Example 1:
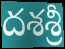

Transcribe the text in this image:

దశశ్రీ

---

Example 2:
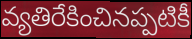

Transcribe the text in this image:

వ్యతిరేకించినప్పటికీ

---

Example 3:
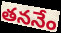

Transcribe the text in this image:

తననేం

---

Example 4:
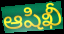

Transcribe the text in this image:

ఆషిఖీ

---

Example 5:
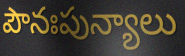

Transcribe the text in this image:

పౌనఃపున్యాలు